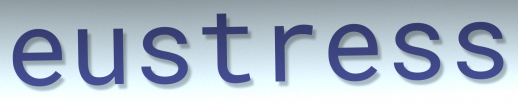
eustress